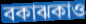
বকাঝকাও